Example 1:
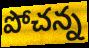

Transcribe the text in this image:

పోచన్న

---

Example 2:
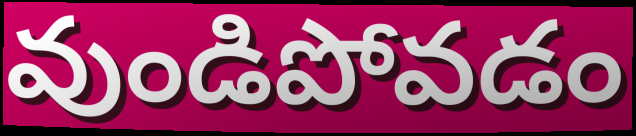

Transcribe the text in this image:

వుండిపోవడం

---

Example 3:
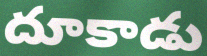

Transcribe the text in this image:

దూకాడు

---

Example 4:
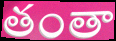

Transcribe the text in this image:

తంతా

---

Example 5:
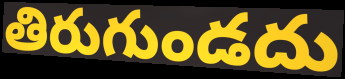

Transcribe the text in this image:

తిరుగుండదు